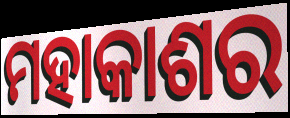
ମହାକାଶର